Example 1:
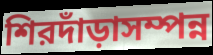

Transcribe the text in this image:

শিরদাঁড়াসম্পন্ন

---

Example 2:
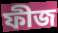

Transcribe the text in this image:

ফীজ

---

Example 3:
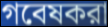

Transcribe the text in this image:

গবেষকরা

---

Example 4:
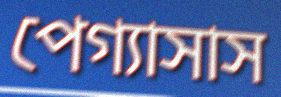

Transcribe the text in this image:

পেগ্যাসাস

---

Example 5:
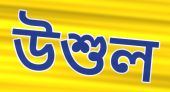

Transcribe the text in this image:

উশুল